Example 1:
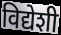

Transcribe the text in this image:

विद्येशी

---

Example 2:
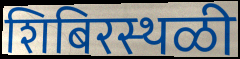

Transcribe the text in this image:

शिबिरस्थळी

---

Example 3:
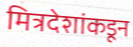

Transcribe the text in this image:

मित्रदेशांकडून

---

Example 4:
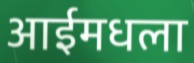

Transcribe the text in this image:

आईमधला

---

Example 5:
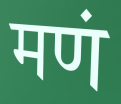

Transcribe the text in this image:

मणं